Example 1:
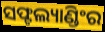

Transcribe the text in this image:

ସଫ୍ଟଲ୍ୟାଣ୍ଡିଂର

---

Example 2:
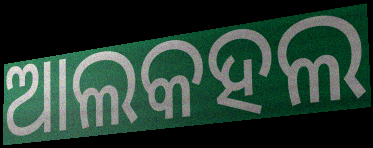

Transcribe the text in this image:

ଆଲକହଲ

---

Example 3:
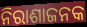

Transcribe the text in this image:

ନିରାଶାଜନକ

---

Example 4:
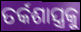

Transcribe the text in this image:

ତର୍କଶାସ୍ତ୍ରକୁ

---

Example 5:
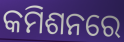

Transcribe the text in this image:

କମିଶନରେ